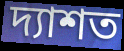
দ্যাশত